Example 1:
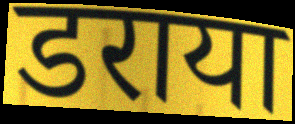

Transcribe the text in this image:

डराया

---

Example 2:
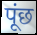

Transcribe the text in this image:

पूंछ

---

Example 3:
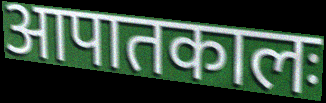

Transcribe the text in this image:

आपातकालः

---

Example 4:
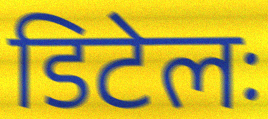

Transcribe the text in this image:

डिटेलः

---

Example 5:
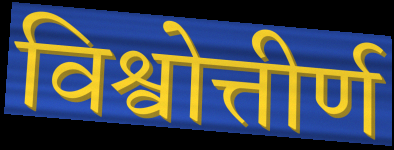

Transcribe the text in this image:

विश्वोत्तीर्ण